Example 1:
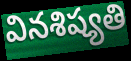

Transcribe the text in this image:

వినశిష్యతి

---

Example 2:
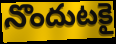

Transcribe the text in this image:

నొందుటకై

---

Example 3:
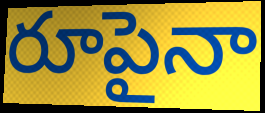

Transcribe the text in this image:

రూపైనా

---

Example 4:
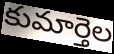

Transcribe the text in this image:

కుమార్తెల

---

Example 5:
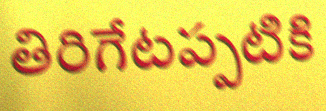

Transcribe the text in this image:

తిరిగేటప్పటికి